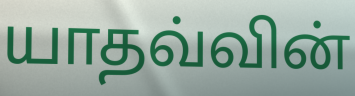
யாதவ்வின்